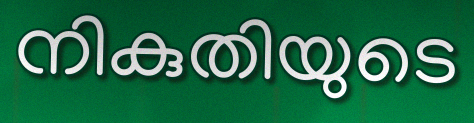
നികുതിയുടെ